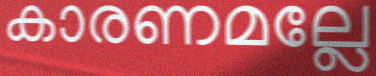
കാരണമല്ലേ